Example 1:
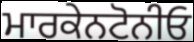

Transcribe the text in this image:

ਮਾਰਕੇਨਟੋਨੀਓ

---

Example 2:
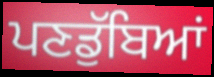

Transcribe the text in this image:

ਪਣਡੁੱਬਿਆਂ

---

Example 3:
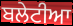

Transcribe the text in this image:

ਬਲੇਟੀਆ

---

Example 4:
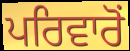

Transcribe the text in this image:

ਪਰਿਵਾਰੋਂ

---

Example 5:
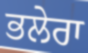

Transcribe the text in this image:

ਭਲੇਰਾ